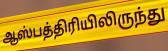
ஆஸ்பத்திரியிலிருந்து